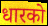
धारको